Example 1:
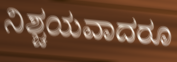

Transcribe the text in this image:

ನಿಶ್ಚಯವಾದರೂ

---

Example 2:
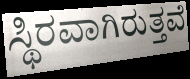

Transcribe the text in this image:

ಸ್ಥಿರವಾಗಿರುತ್ತವೆ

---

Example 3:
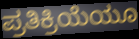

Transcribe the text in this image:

ಪ್ರತಿಕ್ರಿಯೆಯೂ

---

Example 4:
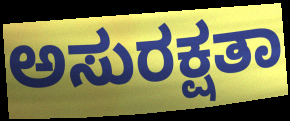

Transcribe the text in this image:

ಅಸುರಕ್ಷತಾ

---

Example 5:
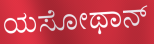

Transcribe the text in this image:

ಯಸೋಥಾನ್